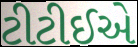
ટીટીઈએ